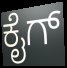
ಕೈಗ್